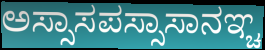
ಅಸ್ಸಾಸಪಸ್ಸಾಸಾನಞ್ಚ